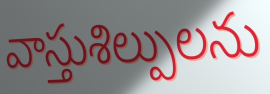
వాస్తుశిల్పులను